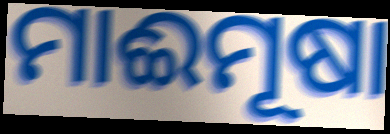
ମାଈମୂଷା